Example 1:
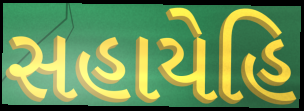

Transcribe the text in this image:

સહાયેહિ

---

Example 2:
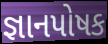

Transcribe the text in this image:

જ્ઞાનપોષક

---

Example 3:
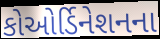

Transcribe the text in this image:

કોઓર્ડિનેશનના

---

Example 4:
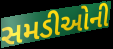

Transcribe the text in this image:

સમડીઓની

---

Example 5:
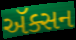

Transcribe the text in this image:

ઍક્સન